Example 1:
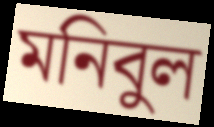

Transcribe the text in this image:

মনিবুল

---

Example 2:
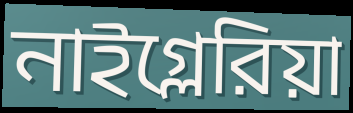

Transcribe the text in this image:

নাইগ্লেরিয়া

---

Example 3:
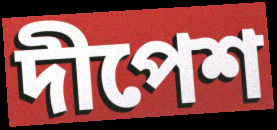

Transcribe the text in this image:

দীপেশ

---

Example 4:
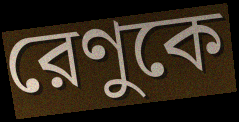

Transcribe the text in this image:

রেণুকে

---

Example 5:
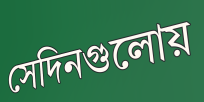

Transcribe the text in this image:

সেদিনগুলোয়